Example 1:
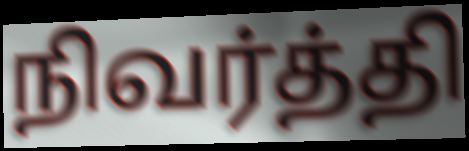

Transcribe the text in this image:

நிவர்த்தி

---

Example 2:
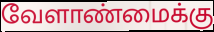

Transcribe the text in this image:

வேளாண்மைக்கு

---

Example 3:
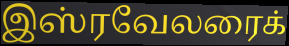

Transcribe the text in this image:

இஸ்ரவேலரைக்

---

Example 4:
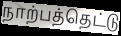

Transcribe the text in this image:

நாற்பத்தெட்டு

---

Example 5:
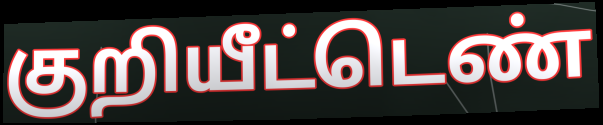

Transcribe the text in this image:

குறியீட்டெண்